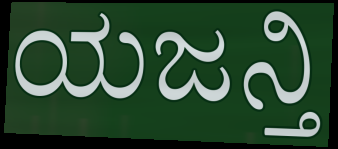
ಯಜನ್ತಿ